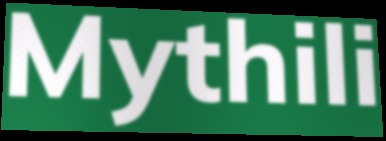
Mythili